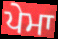
ਪੇਮਾ